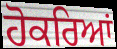
ਹੋਕਰਿਆਂ